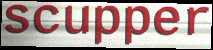
scupper